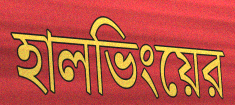
হালভিংয়ের